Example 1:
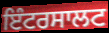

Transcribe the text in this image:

ਇੰਟਰਸਾਲਟ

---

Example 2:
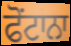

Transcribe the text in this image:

ਫੋਂਟਾਨਾ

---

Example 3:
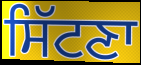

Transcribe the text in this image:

ਸਿੱਟਣਾ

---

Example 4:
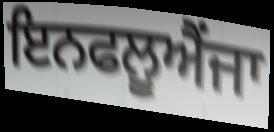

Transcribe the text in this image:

ਇਨਫਲੂਐਂਜਾ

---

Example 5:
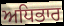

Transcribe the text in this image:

ਅਧਿਭਾਰ